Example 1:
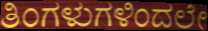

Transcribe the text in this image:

ತಿಂಗಳುಗಳಿಂದಲೇ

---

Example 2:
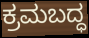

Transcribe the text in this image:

ಕ್ರಮಬದ್ಧ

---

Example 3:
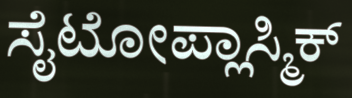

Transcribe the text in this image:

ಸೈಟೋಪ್ಲಾಸ್ಮಿಕ್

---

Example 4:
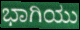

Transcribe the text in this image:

ಭಾಗಿಯು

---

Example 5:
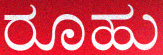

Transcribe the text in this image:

ರೂಹು